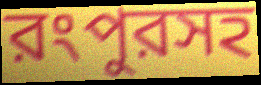
রংপুরসহ